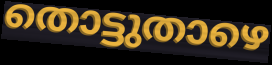
തൊട്ടുതാഴെ